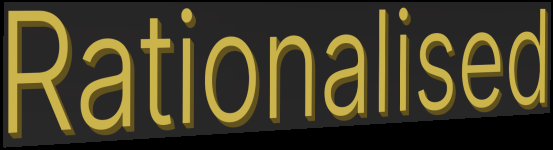
Rationalised